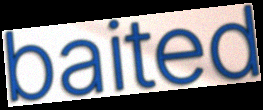
baited